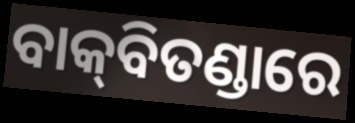
ବାକ୍‌ବିତଣ୍ଡାରେ